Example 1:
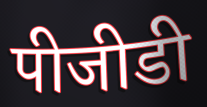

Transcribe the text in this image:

पीजीडी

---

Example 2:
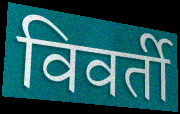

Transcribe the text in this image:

विवर्ती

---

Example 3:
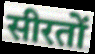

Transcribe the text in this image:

सीरतों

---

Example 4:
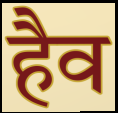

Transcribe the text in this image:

हैव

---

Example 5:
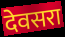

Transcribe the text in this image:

देवसरा